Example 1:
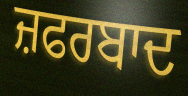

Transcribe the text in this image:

ਜ਼ਫਰਬਾਦ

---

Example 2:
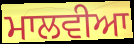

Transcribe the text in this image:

ਮਾਲਵੀਆ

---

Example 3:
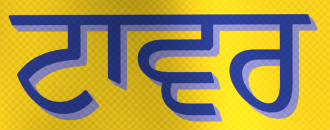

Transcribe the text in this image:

ਟਾਵਰ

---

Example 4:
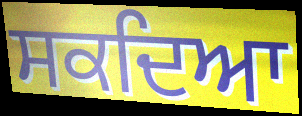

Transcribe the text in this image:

ਸਕਦਿਆ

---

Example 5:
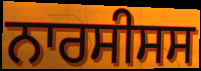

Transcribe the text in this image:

ਨਾਰਸੀਸਸ